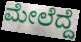
ಮೇಲೆದ್ದೆ